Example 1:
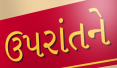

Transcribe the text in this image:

ઉપરાંતને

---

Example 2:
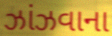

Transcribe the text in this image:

ઝાંઝવાના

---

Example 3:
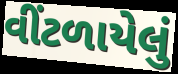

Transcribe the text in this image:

વીંટળાયેલું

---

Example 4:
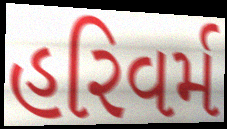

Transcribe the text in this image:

હરિવર્મ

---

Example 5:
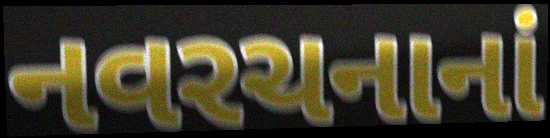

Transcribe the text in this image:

નવરચનાનાં